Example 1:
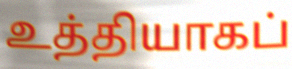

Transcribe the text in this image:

உத்தியாகப்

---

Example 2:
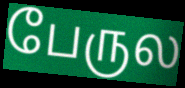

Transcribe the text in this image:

பேருல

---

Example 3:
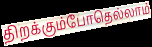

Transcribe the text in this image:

திறக்கும்போதெல்லாம்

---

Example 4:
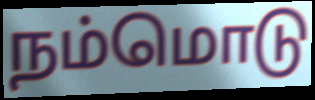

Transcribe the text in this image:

நம்மொடு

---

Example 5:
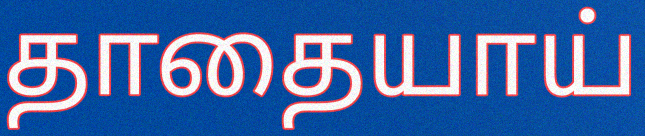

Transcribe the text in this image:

தாதையாய்